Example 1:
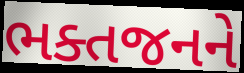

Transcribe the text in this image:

ભક્તજનને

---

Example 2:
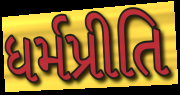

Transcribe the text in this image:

ધર્મપ્રીતિ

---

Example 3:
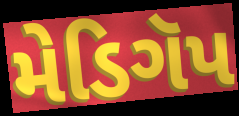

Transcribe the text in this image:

મેડિગૅપ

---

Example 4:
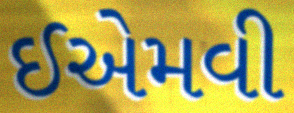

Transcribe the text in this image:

ઈએમવી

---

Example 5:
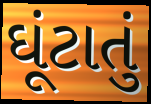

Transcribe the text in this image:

ઘૂંટાતું